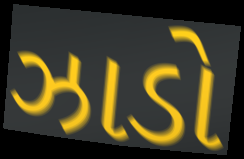
ઝાડો